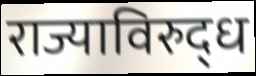
राज्याविरुद्ध